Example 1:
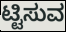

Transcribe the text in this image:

ಟ್ಟಿಸುವ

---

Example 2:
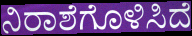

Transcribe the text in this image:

ನಿರಾಶೆಗೊಳಿಸಿದೆ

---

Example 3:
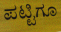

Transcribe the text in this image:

ಪಟ್ಟಿಗೂ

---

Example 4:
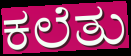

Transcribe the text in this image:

ಕಲೆತು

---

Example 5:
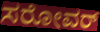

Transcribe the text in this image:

ಸರೋವರ್